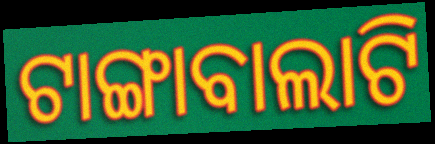
ଟାଙ୍ଗାବାଲାଟି